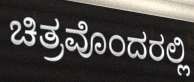
ಚಿತ್ರವೊಂದರಲ್ಲಿ